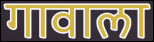
गावाला